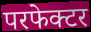
परफेक्टर